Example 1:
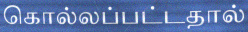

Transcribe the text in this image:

கொல்லப்பட்டதால்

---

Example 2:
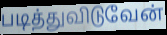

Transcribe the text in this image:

படித்துவிடுவேன்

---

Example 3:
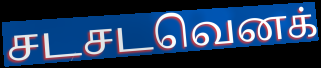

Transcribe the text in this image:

சடசடவெனக்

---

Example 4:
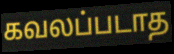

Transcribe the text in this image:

கவலப்படாத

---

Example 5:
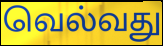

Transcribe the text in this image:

வெல்வது